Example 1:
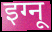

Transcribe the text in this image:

इग्‍नू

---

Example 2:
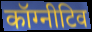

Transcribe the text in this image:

कॉग्नीटिव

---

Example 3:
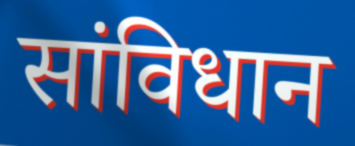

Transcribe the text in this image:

सांविधान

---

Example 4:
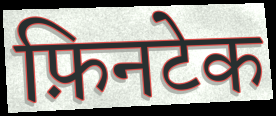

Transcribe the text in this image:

फ़िनटेक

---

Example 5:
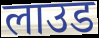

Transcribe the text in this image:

लाउड